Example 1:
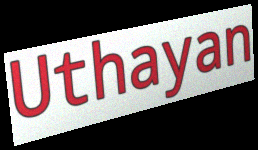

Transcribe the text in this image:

Uthayan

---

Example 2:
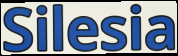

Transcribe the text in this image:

Silesia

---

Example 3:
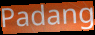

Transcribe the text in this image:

Padang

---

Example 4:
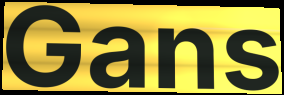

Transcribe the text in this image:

Gans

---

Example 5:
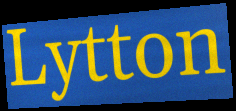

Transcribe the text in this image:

Lytton